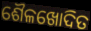
ଶୈଳଖୋଦିତ